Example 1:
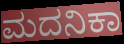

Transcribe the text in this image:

ಮದನಿಕಾ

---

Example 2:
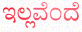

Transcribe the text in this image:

ಇಲ್ಲವೆಂದೆ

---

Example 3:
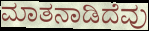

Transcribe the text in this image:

ಮಾತನಾಡಿದೆವು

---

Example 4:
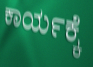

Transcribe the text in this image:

ಕಾರ್ಯಕ್ಕೆ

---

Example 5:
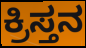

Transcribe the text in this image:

ಕ್ರಿಸ್ತನ